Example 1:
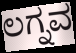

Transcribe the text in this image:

ಲಗ್ನವ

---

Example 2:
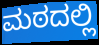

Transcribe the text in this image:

ಮಠದಲ್ಲಿ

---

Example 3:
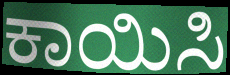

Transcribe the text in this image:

ಕಾಯಿಸಿ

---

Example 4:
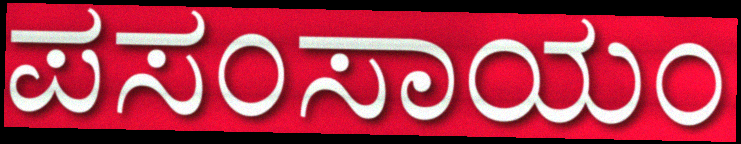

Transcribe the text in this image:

ಪಸಂಸಾಯಂ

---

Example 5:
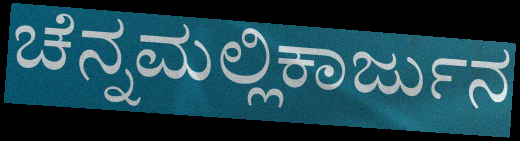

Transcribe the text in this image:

ಚೆನ್ನಮಲ್ಲಿಕಾರ್ಜುನ